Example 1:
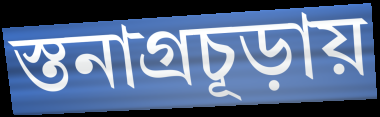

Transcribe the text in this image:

স্তনাগ্রচূড়ায়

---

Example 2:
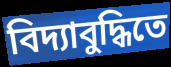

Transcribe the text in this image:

বিদ্যাবুদ্ধিতে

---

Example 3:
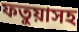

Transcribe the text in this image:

ফতুয়াসহ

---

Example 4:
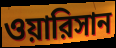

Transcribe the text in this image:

ওয়ারিসান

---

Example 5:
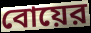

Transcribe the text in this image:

বোয়ের